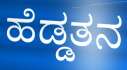
ಹೆಡ್ಡತನ